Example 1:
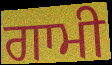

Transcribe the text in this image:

ਗਾਮੀ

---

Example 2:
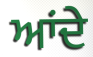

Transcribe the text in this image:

ਆਂਦੇ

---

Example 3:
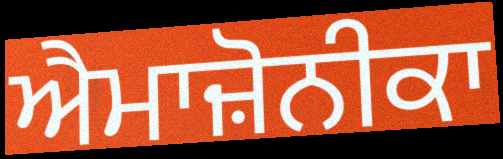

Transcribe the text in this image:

ਐਮਾਜ਼ੋਨੀਕਾ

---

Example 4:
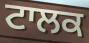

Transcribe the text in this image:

ਟਾਲਕ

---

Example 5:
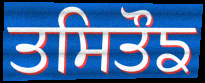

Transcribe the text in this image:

ਤਸਿਤੌਙ